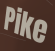
Pike